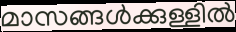
മാസങ്ങൾക്കുള്ളിൽ